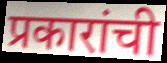
प्रकारांची